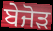
ਬੇਜੋੜ